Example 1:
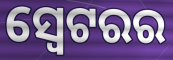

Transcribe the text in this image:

ସ୍ୱେଟରର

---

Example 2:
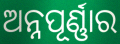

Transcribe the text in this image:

ଅନ୍ନପୂର୍ଣ୍ଣାର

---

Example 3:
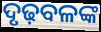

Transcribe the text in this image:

ଦୃଢ଼ବଳଙ୍କ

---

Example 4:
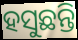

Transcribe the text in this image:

ହସୁଛନ୍ତି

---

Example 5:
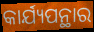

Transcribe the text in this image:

କାର୍ଯ୍ୟପନ୍ଥାର